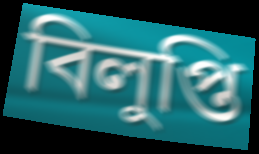
বিলুপ্তি